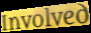
Involved